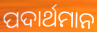
ପଦାର୍ଥମାନ